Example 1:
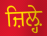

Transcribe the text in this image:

ਜ਼ਿਲ਼੍ਹੇ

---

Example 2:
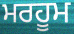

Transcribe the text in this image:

ਮਰਹੂਮ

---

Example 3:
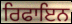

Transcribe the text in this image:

ਰਿਫਾਇਨ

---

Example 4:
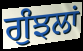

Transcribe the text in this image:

ਗੁੰਝਲਾਂ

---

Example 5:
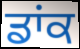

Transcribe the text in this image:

ਡਾਂਕ